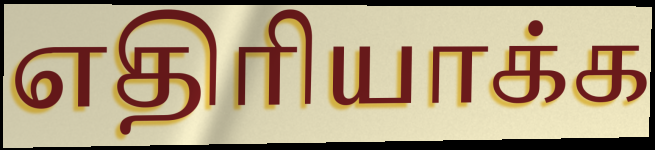
எதிரியாக்க